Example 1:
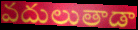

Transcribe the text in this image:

వదులుతాడా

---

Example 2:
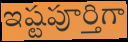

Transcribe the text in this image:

ఇష్టపూర్తిగా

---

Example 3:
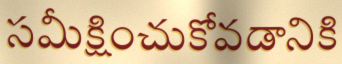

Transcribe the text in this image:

సమీక్షించుకోవడానికి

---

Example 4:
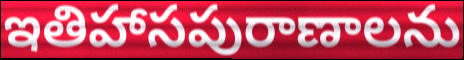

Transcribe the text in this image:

ఇతిహాసపురాణాలను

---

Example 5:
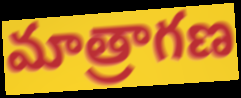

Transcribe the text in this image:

మాత్రాగణ